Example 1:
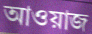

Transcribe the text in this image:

আওয়াজ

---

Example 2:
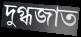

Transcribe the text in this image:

দুগ্ধজাত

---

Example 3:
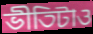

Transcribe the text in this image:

ভীতিটাও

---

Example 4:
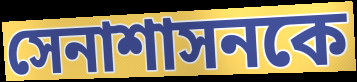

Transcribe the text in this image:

সেনাশাসনকে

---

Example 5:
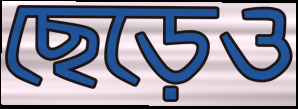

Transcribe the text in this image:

ছেড়েও